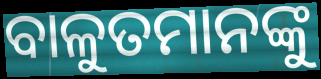
ବାଳୁତମାନଙ୍କୁ